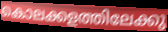
കൊലക്കളത്തിലേക്കു